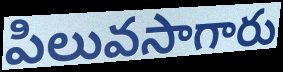
పిలువసాగారు